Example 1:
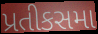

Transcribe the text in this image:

પ્રતીકસમા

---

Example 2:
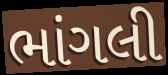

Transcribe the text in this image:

ભાંગલી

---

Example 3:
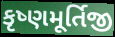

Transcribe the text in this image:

કૃષ્ણમૂર્તિજી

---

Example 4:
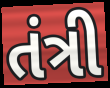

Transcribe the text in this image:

તંત્રી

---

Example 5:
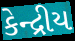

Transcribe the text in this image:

કેન્દ્રીય